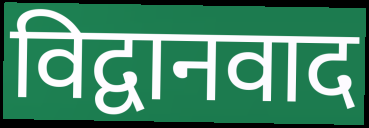
विद्वानवाद